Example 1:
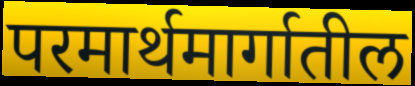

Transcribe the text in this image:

परमार्थमार्गातील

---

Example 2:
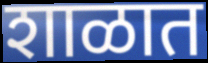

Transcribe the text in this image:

शाळात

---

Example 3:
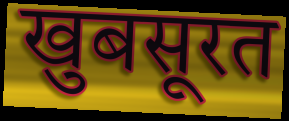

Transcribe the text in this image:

खुबसूरत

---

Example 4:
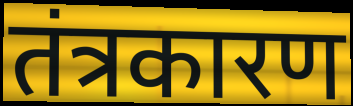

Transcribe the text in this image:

तंत्रकारण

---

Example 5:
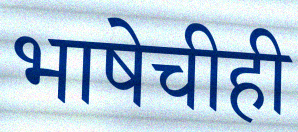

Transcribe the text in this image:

भाषेचीही